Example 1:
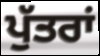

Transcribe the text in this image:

ਪੁੱਤਰਾਂ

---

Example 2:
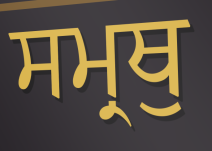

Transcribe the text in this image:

ਸਮ੍ਰਥੁ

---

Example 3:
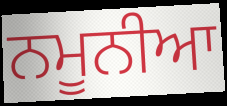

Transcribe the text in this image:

ਨਮੂਨੀਆ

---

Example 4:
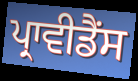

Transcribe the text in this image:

ਪ੍ਰਾਵੀਡੈਂਸ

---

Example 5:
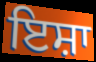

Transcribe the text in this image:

ਇਸ਼ਾ